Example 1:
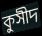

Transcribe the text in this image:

কুসীদ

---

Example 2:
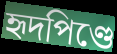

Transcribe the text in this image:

হৃদপিণ্ডে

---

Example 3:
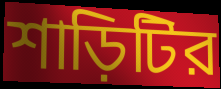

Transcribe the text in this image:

শাড়িটির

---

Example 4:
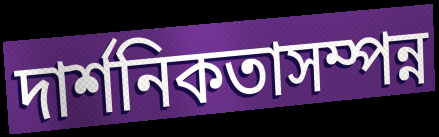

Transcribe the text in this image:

দার্শনিকতাসম্পন্ন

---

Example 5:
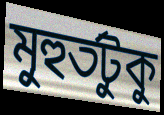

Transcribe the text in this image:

মুহুর্তটুকু